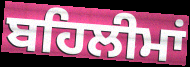
ਬਹਿਲੀਮਾਂ